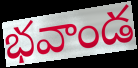
భవాండ